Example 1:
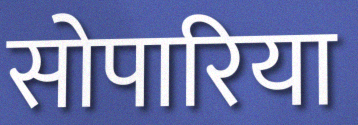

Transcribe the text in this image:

सोपारिया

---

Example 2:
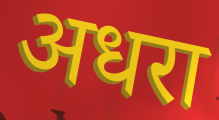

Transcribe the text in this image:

अधरा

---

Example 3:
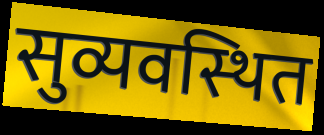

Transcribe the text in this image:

सुव्यवस्थित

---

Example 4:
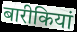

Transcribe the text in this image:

बारीकियां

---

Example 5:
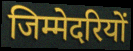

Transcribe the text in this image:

जिम्मेदरियों